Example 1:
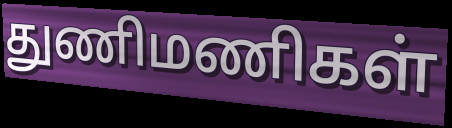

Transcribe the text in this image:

துணிமணிகள்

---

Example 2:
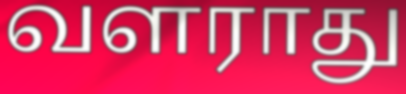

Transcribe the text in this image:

வளராது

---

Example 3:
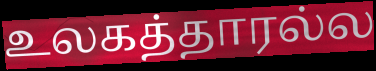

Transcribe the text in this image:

உலகத்தாரல்ல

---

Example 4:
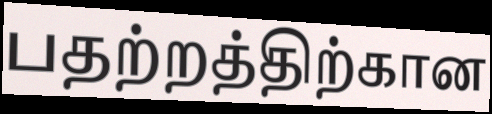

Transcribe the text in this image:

பதற்றத்திற்கான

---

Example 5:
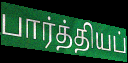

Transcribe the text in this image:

பார்த்தியப்